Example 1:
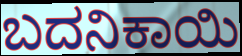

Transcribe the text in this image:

ಬದನಿಕಾಯಿ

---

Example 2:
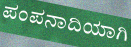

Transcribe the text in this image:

ಪಂಪನಾದಿಯಾಗಿ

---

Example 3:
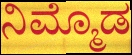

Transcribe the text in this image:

ನಿಮ್ಮೊಡ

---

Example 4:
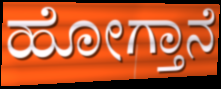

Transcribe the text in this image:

ಹೋಗ್ತಾನೆ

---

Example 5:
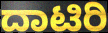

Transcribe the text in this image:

ದಾಟಿರಿ